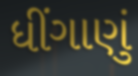
ધીંગાણું